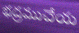
భద్రముచేయ